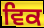
ਵਿਕ